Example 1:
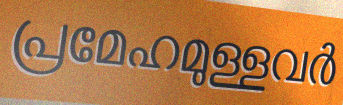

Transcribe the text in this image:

പ്രമേഹമുള്ളവർ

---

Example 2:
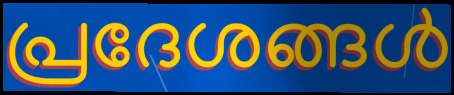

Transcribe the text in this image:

പ്രദേശങ്ങൾ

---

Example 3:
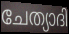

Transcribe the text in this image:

ചേത്യാദി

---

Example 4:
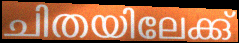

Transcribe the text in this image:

ചിതയിലേക്കു്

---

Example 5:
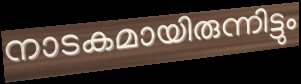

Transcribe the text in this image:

നാടകമായിരുന്നിട്ടും